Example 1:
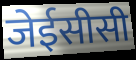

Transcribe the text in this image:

जेईसीसी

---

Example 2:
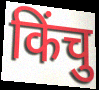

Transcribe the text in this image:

किंचु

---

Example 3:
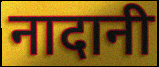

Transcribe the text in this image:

नादानी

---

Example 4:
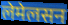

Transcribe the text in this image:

लेमेलसन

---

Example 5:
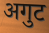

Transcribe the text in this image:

अगुट